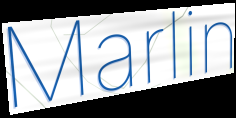
Marlin